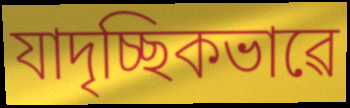
যাদৃচ্ছিকভাৱে